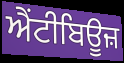
ਐਂਟੀਬਿਊਜ਼